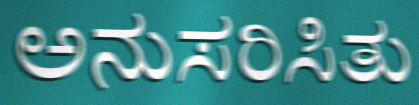
ಅನುಸರಿಸಿತು